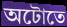
অটোতে